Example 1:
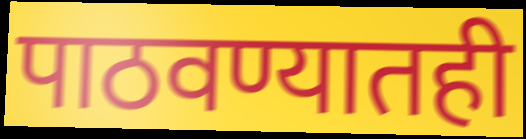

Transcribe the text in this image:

पाठवण्यातही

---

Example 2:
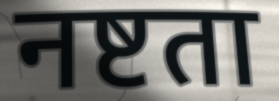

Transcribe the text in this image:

नष्टता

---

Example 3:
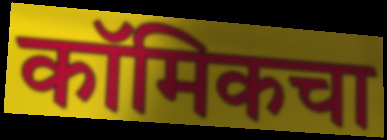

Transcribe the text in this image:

कॉमिकचा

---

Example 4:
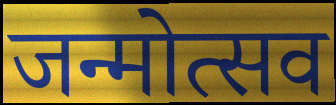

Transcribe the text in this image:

जन्मोत्सव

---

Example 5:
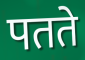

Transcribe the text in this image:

पतते